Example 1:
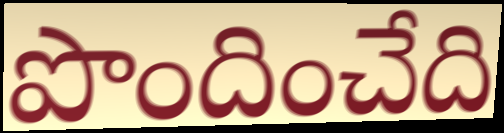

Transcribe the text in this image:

పొందించేది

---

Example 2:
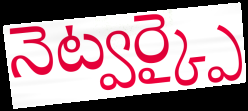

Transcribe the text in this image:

నెట్వర్క్పై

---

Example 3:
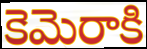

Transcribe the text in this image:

కెమెరాకి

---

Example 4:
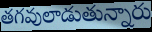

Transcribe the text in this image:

తగవులాడుతున్నారు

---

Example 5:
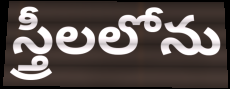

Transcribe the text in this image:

స్త్రీలలోను